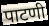
पाटणी